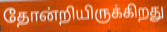
தோன்றியிருக்கிறது